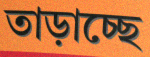
তাড়াচ্ছে